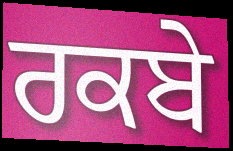
ਰਕਬੇ